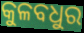
କୁଳବଧୁର